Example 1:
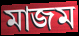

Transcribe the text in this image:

মাজম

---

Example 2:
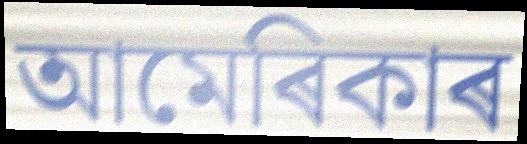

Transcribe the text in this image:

আমেৰিকাৰ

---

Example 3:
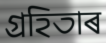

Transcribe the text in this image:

গ্ৰহিতাৰ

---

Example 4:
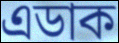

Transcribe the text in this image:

এডাক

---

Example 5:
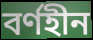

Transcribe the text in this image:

বৰ্ণহীন